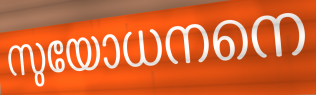
സുയോധനനെ